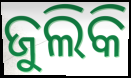
ଜୁଲିକି